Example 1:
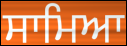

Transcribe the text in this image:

ਸਾਮਿਆ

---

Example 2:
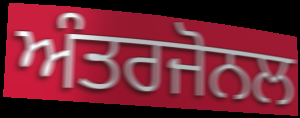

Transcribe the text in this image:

ਅੰਤਰਜੋਨਲ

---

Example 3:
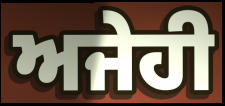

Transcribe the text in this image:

ਅਜੇਹੀ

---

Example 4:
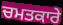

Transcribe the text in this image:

ਚਮਤਕਾਰੇ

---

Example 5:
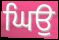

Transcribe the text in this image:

ਘਿਉ